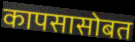
कापसासोबत